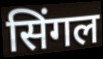
सिंगल